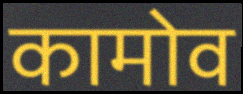
कामोव